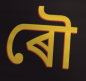
ৰৌ